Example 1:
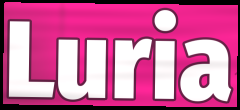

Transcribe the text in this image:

Luria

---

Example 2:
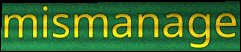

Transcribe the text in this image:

mismanage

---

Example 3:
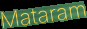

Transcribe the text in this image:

Mataram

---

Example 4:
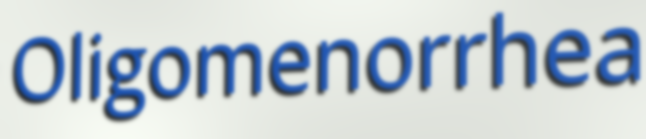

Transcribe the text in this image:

Oligomenorrhea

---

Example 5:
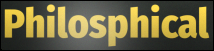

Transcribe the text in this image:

Philosphical